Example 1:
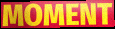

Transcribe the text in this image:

MOMENT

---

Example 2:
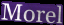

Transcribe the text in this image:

Morel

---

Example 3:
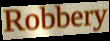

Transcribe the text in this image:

Robbery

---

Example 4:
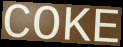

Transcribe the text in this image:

COKE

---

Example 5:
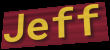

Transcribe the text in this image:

Jeff